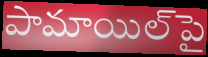
పామాయిల్‌పై